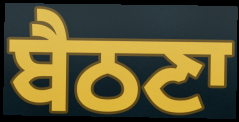
ਬੈਠਣਾ